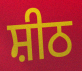
ਸ਼ੀਠ